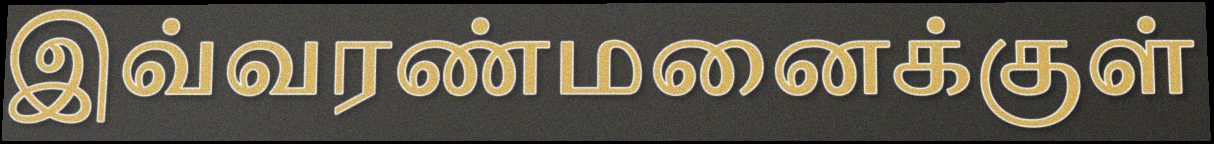
இவ்வரண்மனைக்குள்